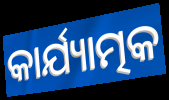
କାର୍ଯ୍ୟାତ୍ମକ